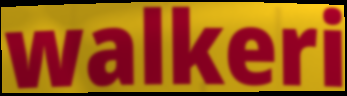
walkeri